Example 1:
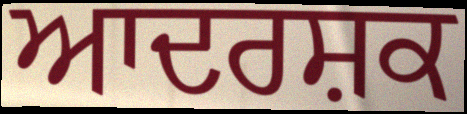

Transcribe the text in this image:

ਆਦਰਸ਼ਕ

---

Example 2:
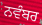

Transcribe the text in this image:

ਨਵੰਬਰ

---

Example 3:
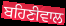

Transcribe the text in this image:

ਬਹਿਣੀਵਾਲ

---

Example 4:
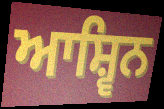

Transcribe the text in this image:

ਆਸ਼੍ਵਿਨ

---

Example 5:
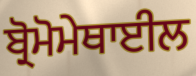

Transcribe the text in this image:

ਬ੍ਰੋਮੋਮੇਥਾਈਲ